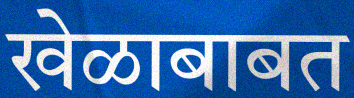
खेळाबाबत